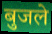
बुजले